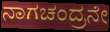
ನಾಗಚಂದ್ರನೇ